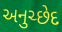
અનુચ્છેદ